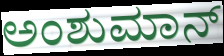
ಅಂಶುಮಾನ್